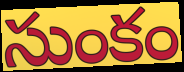
సుంకం